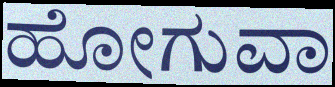
ಹೋಗುವಾ